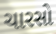
ચારસો